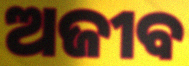
ଅଜୀବ